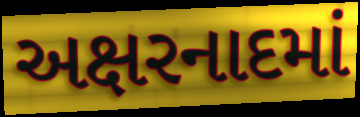
અક્ષરનાદમાં